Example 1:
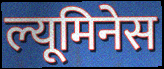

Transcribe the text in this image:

ल्यूमिनेस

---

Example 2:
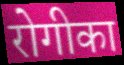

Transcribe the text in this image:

रोगीका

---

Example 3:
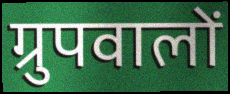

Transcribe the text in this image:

ग्रुपवालों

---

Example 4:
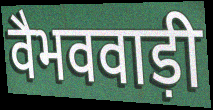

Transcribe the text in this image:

वैभववाड़ी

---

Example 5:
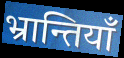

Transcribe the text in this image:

भ्रान्तियाँ